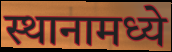
स्थानामध्ये